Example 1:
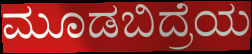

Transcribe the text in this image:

ಮೂಡಬಿದ್ರೆಯ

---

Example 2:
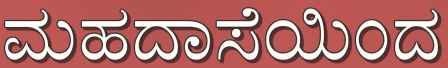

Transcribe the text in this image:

ಮಹದಾಸೆಯಿಂದ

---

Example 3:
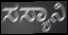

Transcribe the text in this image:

ಸಸ್ಯಾನಿ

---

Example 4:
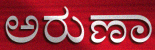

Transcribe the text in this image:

ಅರುಣಾ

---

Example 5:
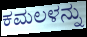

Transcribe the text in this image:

ಕಮಲಳನ್ನು